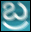
బ్ర